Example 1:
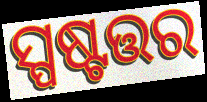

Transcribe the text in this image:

ସ୍ପଷ୍ଟତ୍ତର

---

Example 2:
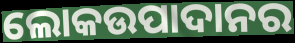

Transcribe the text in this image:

ଲୋକଉପାଦାନର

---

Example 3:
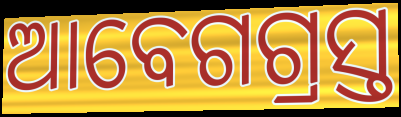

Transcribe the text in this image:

ଆବେଗଗ୍ରସ୍ତ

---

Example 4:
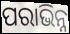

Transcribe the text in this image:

ପରାଭିନ୍ନ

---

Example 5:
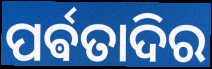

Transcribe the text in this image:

ପର୍ଵତାଦିର